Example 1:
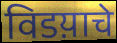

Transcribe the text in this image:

विडय़ाचे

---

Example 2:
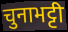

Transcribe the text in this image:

चुनाभट्टी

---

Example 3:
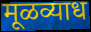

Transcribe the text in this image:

मूळव्याध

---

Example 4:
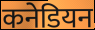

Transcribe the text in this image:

कनेडियन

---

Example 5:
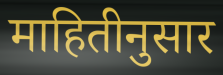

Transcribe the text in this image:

माहितीनुसार